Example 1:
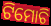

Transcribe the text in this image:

ଟିମୋଚି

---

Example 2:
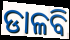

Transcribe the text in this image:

ଡାଳବି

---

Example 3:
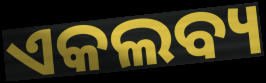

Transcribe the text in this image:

ଏକଲବ୍ୟ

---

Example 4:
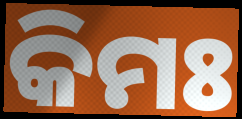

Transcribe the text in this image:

କିମଃ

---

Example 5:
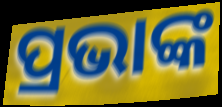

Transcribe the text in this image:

ପ୍ରଭାଙ୍କ